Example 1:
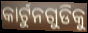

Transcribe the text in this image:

କାର୍ଟୁନଗୁଡିକୁ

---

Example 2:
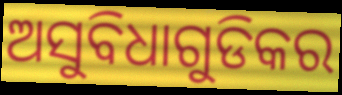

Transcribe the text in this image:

ଅସୁବିଧାଗୁଡିକର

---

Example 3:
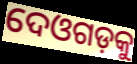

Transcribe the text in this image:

ଦେଓଗଡ଼କୁ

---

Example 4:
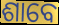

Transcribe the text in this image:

ଶାବେ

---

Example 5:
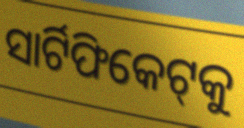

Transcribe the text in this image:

ସାର୍ଟିଫିକେଟ୍‌କୁ